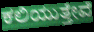
ಕಲಿಯುತ್ತೇವೆ